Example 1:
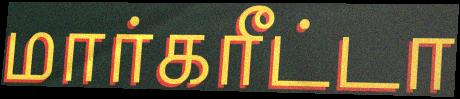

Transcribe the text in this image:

மார்கரீட்டா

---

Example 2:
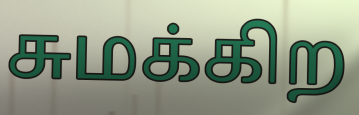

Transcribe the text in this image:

சுமக்கிற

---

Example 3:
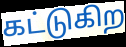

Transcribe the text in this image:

கட்டுகிற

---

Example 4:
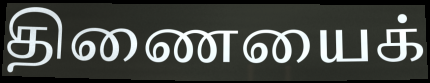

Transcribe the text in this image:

திணையைக்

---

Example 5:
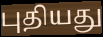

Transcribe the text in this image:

புதியது